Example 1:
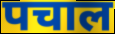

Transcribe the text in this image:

पचाल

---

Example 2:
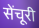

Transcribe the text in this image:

सेंचूरी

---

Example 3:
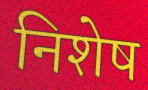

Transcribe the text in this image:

निशेष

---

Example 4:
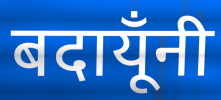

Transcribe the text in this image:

बदायूँनी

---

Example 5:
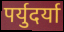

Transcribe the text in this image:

पर्युदर्या